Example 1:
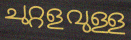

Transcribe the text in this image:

ചുറ്റളവുള്ള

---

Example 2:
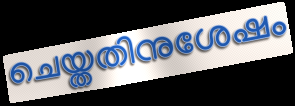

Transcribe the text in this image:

ചെയ്തതിനുശേഷം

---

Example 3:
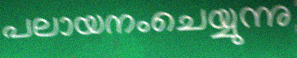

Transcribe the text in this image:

പലായനംചെയ്യുന്നു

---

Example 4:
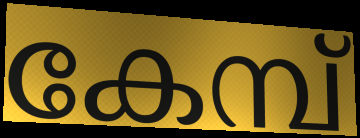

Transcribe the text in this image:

കേമ്പ്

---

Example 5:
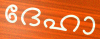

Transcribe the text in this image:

ദേഹാ